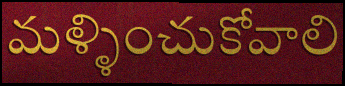
మళ్ళించుకోవాలి